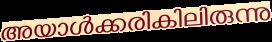
അയാൾക്കരികിലിരുന്നു